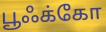
பூஃக்கோ